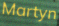
Martyn